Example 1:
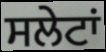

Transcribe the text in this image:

ਸਲੇਟਾਂ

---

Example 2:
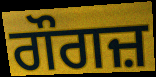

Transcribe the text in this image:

ਗੌਗਜ਼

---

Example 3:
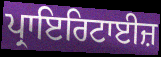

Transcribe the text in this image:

ਪ੍ਰਾਇਰਿਟਾਈਜ਼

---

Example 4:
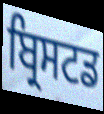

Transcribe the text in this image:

ਬ੍ਰਿਸਟਡ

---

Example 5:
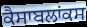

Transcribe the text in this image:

ਕੈਸਾਬਲਾਂਕਸ